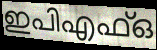
ഇപിഎഫ്ഒ